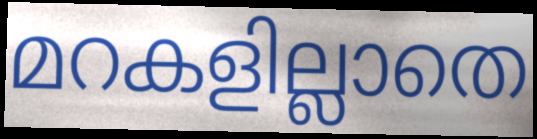
മറകളില്ലാതെ